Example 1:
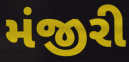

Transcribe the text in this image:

મંજીરી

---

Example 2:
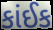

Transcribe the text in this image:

કાંઈક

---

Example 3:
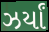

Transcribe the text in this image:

ઝર્યાં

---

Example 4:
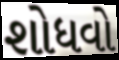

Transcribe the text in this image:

શોધવો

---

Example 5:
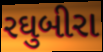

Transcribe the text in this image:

રઘુબીરા